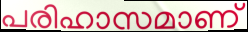
പരിഹാസമാണ്